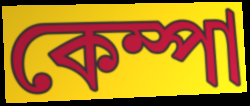
কেম্পা